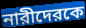
নারীদেরকে